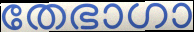
തേഭാഗാ